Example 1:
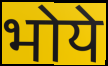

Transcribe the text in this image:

भोये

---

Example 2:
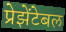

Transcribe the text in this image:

प्रेझेंटेबल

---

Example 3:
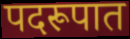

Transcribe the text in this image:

पदरूपात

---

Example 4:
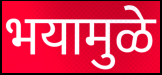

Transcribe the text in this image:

भयामुळे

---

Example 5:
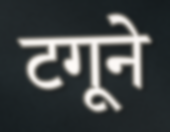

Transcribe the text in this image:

टगूने